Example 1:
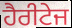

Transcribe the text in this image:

ਹੈਰੀਟੇਜ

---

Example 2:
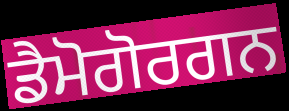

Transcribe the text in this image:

ਡੈਮੋਗੋਰਗਨ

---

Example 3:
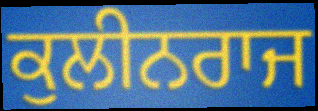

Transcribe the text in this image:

ਕੁਲੀਨਰਾਜ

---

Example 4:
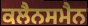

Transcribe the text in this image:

ਕਲੈਨਸਮੈਨ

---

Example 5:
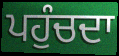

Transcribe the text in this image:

ਪਹੁੰਚਦਾ